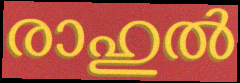
രാഹുൽ